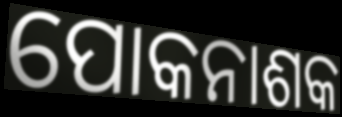
ପୋକନାଶକ